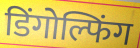
डिंगोल्फिंग